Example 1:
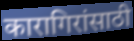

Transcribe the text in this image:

कारागिरांसाठी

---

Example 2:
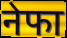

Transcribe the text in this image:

नेफा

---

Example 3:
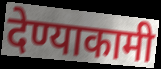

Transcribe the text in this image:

देण्याकामी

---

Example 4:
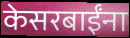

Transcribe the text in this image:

केसरबाईंना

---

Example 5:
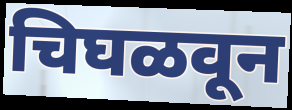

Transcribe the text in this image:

चिघळवून